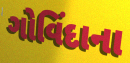
ગોવિંદાના